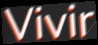
Vivir